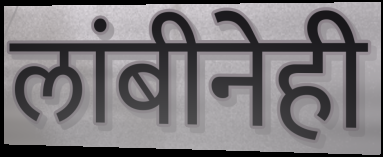
लांबीनेही